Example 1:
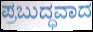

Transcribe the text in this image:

ಪ್ರಬುದ್ಧವಾದ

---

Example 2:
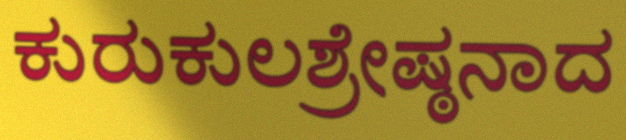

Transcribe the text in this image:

ಕುರುಕುಲಶ್ರೇಷ್ಠನಾದ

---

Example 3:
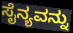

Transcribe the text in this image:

ಸೈನ್ಯವನ್ನು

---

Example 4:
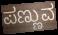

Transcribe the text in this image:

ಪಣ್ಣುವ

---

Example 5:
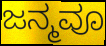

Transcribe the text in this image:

ಜನ್ಮವೂ